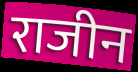
राजीन